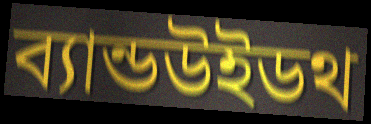
ব্যান্ডউইডথ